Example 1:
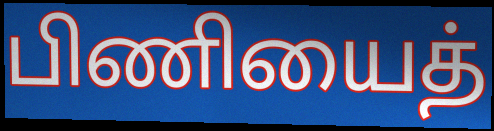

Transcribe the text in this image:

பிணியைத்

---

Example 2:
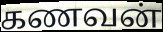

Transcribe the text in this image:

கணவன்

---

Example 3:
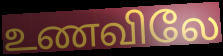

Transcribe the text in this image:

உணவிலே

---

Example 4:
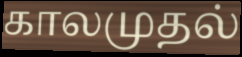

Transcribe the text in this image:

காலமுதல்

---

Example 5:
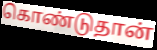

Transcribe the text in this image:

கொண்டுதான்